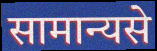
सामान्यसे